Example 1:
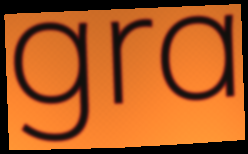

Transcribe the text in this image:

gra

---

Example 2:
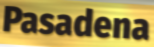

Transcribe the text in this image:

Pasadena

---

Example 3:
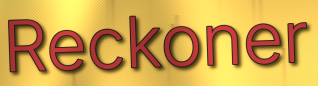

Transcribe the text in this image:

Reckoner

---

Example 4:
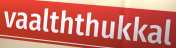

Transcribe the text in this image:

vaalththukkal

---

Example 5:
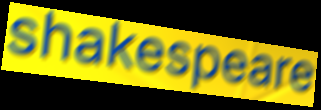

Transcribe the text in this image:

shakespeare